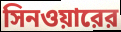
সিনওয়ারের